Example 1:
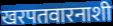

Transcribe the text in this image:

खरपतवारनाशी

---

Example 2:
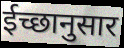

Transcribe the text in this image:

ईच्छानुसार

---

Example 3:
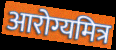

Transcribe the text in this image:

आरोग्यमित्र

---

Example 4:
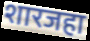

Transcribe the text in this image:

शारजहा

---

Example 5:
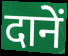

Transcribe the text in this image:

दानें